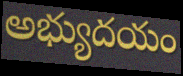
అభ్యుదయం